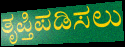
ತೃಪ್ತಿಪಡಿಸಲು